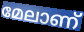
മേലാണ്